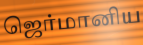
ஜெர்மானிய